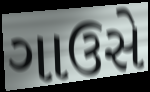
ગાઉસે